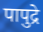
पापुद्रे